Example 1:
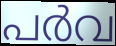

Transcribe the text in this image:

പർവ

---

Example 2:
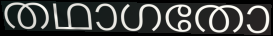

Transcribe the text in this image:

തഥാഗതോ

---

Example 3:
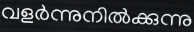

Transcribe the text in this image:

വളർന്നുനിൽക്കുന്നു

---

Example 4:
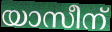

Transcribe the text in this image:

യാസീന്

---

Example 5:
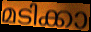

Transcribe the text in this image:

മടിക്കാ